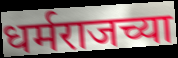
धर्मराजच्या